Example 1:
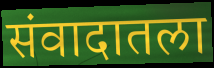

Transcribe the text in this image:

संवादातला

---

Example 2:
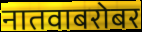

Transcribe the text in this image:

नातवाबरोबर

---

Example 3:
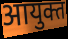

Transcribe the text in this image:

आयुक्‍त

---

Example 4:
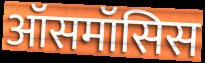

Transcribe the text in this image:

ऑसमॉसिस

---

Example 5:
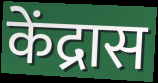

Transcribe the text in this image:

केंद्रास